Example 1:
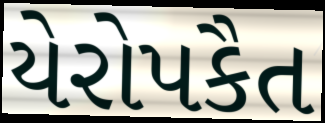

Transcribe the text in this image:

યેરોપકૈત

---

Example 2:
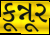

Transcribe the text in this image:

કૂન્નૂર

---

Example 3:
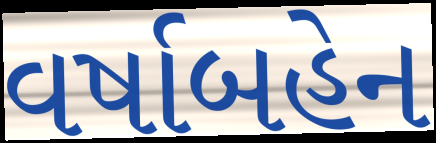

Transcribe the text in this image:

વર્ષાબહેન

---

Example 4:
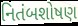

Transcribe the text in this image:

નિતંબશોષણ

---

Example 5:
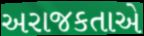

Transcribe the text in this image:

અરાજકતાએ